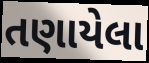
તણાયેલા